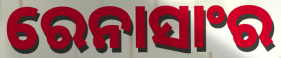
ରେନାସାଂର